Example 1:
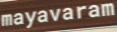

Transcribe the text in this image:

mayavaram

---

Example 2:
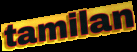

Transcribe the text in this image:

tamilan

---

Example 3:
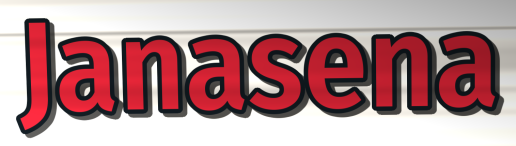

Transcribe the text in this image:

Janasena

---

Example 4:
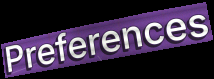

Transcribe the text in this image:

Preferences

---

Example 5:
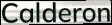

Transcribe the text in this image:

Calderon